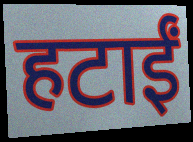
हटाईं